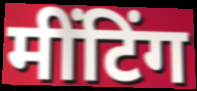
मींटिंग